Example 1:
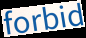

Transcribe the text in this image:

forbid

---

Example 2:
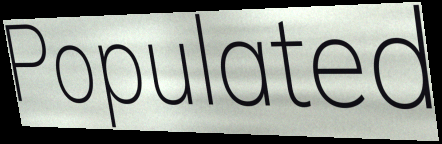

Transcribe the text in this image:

Populated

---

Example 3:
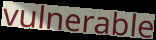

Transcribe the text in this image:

vulnerable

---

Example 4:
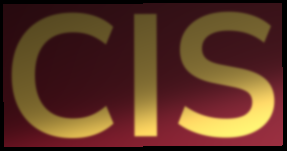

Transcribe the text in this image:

CIS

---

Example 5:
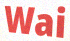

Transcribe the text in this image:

Wai